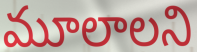
మూలాలని